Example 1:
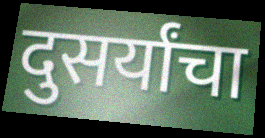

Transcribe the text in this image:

दुसर्यांचा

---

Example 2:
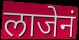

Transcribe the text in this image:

लाजेनं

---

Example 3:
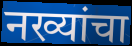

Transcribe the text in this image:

नख्यांचा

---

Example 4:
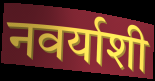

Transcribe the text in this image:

नवर्याशी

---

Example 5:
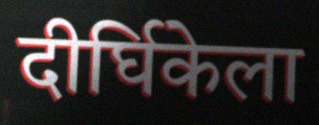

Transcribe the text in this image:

दीर्घिकेला